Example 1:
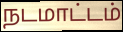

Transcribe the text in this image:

நடமாட்டம்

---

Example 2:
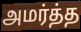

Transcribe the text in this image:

அமர்த்த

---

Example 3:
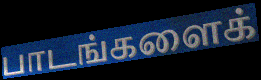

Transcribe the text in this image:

பாடங்களைக்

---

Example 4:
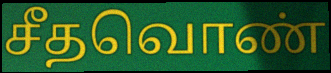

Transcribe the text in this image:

சீதவொண்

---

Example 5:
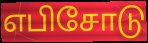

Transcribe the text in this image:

எபிசோடு